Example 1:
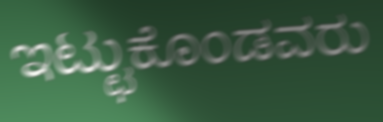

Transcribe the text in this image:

ಇಟ್ಟುಕೊಂಡವರು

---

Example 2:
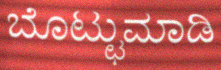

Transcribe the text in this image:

ಬೊಟ್ಟುಮಾಡಿ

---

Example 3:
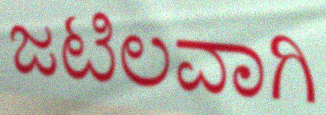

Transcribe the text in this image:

ಜಟಿಲವಾಗಿ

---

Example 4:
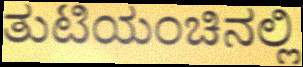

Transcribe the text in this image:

ತುಟಿಯಂಚಿನಲ್ಲಿ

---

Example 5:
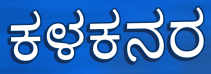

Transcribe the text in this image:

ಕಳಕನರ